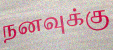
நனவுக்கு